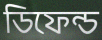
ডিফেন্ড